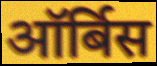
ऑर्बिस